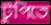
টুপিতে